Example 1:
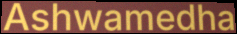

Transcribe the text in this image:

Ashwamedha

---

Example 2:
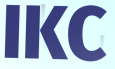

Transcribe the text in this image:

IKC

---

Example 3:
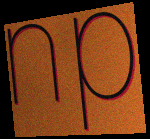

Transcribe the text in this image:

np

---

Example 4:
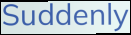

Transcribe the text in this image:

Suddenly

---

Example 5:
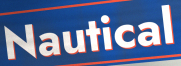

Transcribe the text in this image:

Nautical